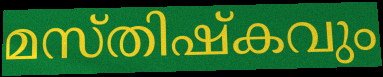
മസ്തിഷ്കവും